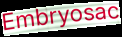
Embryosac